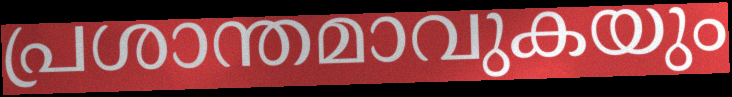
പ്രശാന്തമാവുകയും